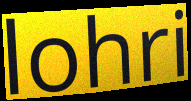
lohri